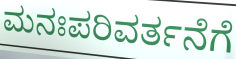
ಮನಃಪರಿವರ್ತನೆಗೆ